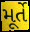
મૂર્તે